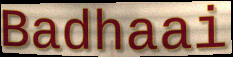
Badhaai